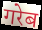
गरेब